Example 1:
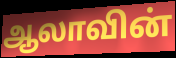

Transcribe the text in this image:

ஆலாவின்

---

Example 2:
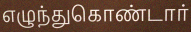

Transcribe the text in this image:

எழுந்துகொண்டார்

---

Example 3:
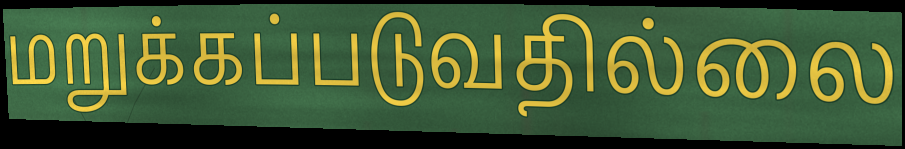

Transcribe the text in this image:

மறுக்கப்படுவதில்லை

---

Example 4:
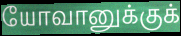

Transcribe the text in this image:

யோவானுக்குக்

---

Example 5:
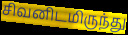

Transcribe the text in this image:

சிவனிடமிருந்து